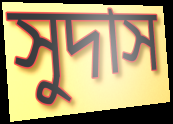
সুদাস